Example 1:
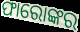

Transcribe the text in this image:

ଫାରୋଙ୍କର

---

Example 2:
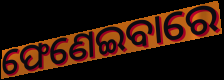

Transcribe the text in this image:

ଫେଣେଇବାରେ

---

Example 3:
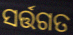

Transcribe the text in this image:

ସର୍ତ୍ତଗତ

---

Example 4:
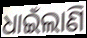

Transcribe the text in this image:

ଧାଇଁଲାଣି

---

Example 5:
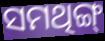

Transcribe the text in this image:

ସମଥିଙ୍ଗ୍